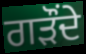
ਗੜੌਂਦੇ